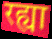
रह्या